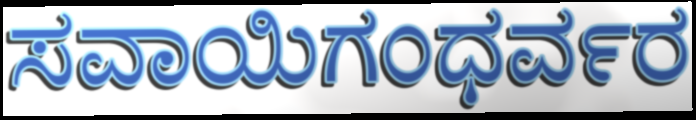
ಸವಾಯಿಗಂಧರ್ವರ